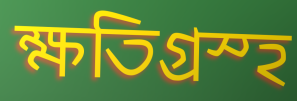
ক্ষতিগ্রস্হ